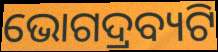
ଭୋଗଦ୍ରବ୍ୟଟି